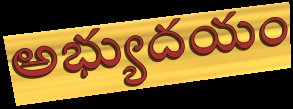
అభ్యుదయం